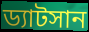
ড্যাটসান